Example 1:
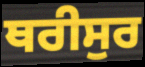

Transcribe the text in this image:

ਥਰੀਸੁਰ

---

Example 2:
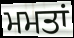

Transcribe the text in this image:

ਮਮਤਾਂ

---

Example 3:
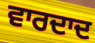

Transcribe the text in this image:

ਵਾਰਦਾਦ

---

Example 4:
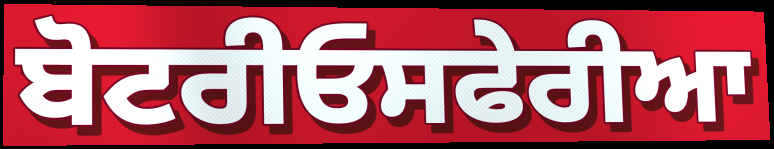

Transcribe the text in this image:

ਬੋਟਰੀਓਸਫੇਰੀਆ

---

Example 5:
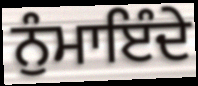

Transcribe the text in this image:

ਨੁੰਮਾਇੰਦੇ